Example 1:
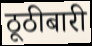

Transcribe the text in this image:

ठूठीबारी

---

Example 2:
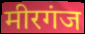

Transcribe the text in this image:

मीरगंज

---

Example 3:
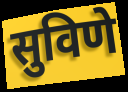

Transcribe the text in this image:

सुविणे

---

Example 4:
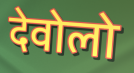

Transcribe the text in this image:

देवोलो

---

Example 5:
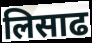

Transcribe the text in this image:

लिसाढ